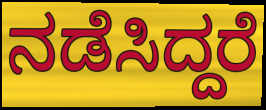
ನಡೆಸಿದ್ದರೆ